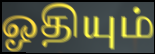
ஓதியும்